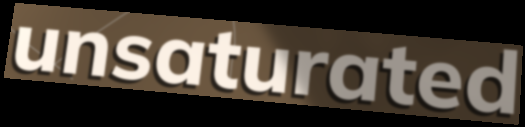
unsaturated